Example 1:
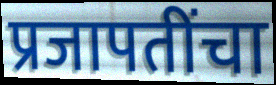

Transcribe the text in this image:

प्रजापतींचा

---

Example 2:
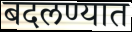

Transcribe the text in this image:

बदलण्यात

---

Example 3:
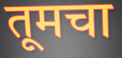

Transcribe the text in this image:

तूमचा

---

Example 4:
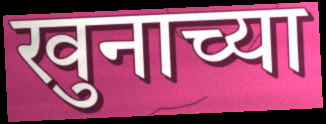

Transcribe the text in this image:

खुनाच्या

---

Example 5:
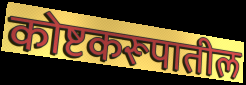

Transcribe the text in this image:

कोष्टकरूपातील